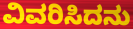
ವಿವರಿಸಿದನು